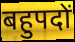
बहुपदों